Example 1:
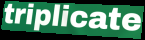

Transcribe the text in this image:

triplicate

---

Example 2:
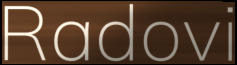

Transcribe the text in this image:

Radovi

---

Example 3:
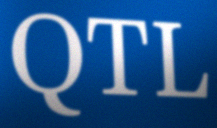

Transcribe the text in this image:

QTL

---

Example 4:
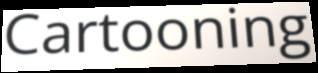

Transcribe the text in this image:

Cartooning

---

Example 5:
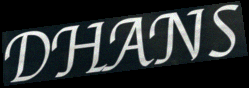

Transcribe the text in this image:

DHANS